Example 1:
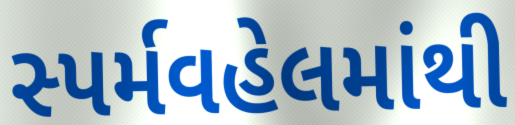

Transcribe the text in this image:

સ્પર્મવહેલમાંથી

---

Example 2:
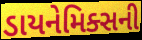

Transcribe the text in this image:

ડાયનેમિક્સની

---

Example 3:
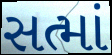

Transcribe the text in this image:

સત્માં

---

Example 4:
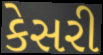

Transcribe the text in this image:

કેસરી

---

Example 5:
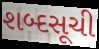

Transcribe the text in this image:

શબ્દસૂચી